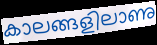
കാലങ്ങളിലാണു